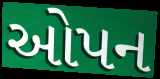
ઓપન